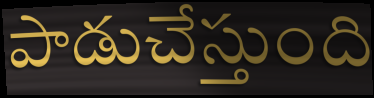
పాడుచేస్తుంది